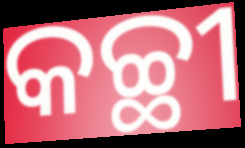
କଚ୍ଛୀ